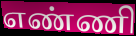
எண்ணி